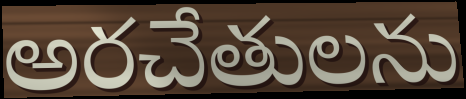
అరచేతులను